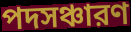
পদসঞ্চারণ